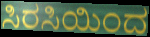
ಸಿರಸಿಯಿಂದ